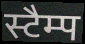
स्टैम्प